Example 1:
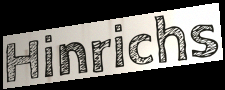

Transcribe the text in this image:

Hinrichs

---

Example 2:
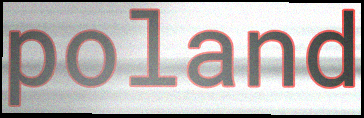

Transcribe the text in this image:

poland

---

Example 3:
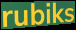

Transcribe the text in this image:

rubiks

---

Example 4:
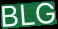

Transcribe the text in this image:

BLG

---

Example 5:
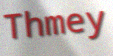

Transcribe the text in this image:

Thmey